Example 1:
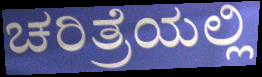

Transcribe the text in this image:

ಚರಿತ್ರೆಯಲ್ಲಿ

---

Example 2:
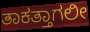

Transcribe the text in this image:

ತಾಕತ್ತಾಗಲೀ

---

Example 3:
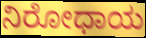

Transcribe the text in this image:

ನಿರೋಧಾಯ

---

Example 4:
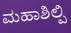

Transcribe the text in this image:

ಮಹಾಶಿಲ್ಪಿ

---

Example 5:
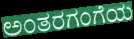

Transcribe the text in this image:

ಅಂತರಗಂಗೆಯ